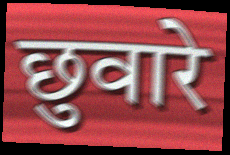
छुवारे